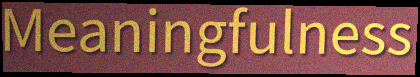
Meaningfulness